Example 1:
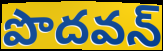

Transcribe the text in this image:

పొదవన్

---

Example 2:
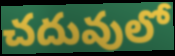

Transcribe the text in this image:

చదువులో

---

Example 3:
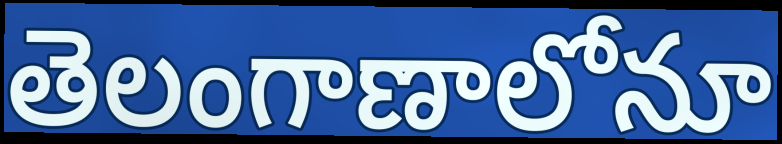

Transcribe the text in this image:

తెలంగాణాలోనూ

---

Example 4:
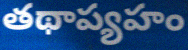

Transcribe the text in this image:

తథాప్యహం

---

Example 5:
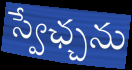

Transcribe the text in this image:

స్వేఛ్చను